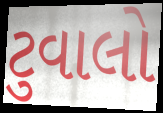
ટુવાલો